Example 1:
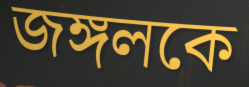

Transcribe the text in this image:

জঙ্গলকে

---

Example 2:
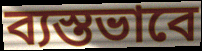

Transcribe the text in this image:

ব্যস্তভাবে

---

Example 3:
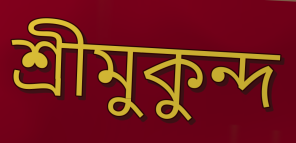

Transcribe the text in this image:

শ্রীমুকুন্দ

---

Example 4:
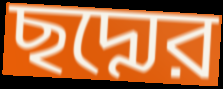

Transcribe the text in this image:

ছদ্মের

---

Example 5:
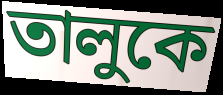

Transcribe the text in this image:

তালুকে